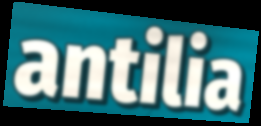
antilia